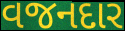
વજનદાર